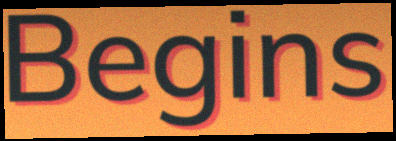
Begins